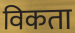
विकता